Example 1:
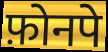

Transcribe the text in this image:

फ़ोनपे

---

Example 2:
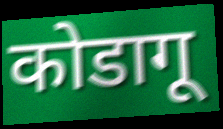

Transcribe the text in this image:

कोडागू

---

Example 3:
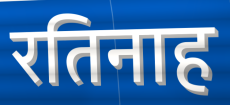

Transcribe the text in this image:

रतिनाह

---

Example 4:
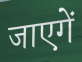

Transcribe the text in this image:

जाएगें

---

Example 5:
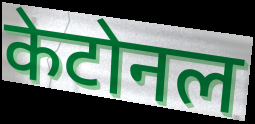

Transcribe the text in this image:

केटोनल